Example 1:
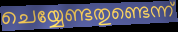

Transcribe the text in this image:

ചെയ്യേണ്ടതുണ്ടെന്ന്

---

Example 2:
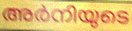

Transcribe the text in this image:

അർനിയുടെ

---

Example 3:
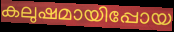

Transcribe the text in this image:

കലുഷമായിപ്പോയ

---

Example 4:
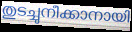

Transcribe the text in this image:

തുടച്ചുനീക്കാനായി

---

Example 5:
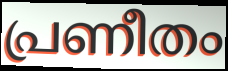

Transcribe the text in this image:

പ്രണീതം